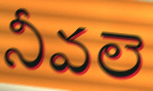
నీవలె